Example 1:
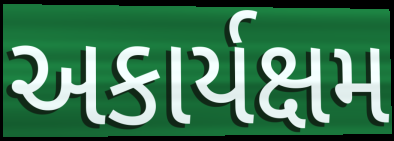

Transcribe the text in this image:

અકાર્યક્ષમ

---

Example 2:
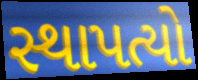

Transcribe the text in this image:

સ્થાપત્યો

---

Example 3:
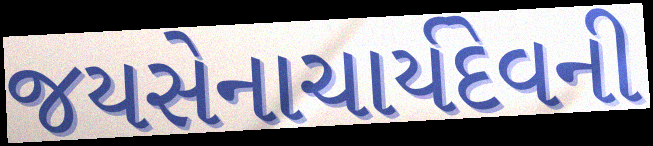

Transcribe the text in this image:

જયસેનાચાર્યદેવની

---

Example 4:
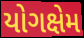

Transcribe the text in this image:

યોગક્ષેમ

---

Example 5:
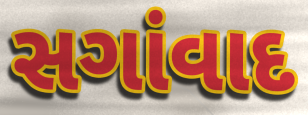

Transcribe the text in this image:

સગાંવાદ